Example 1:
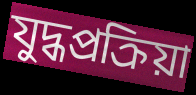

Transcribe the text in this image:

যুদ্ধপ্রক্রিয়া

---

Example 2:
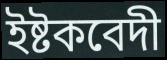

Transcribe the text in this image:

ইষ্টকবেদী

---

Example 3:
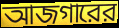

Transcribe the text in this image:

আজগারের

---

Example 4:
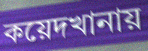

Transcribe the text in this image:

কয়েদখানায়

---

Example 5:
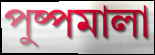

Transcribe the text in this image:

পুষ্পমালা